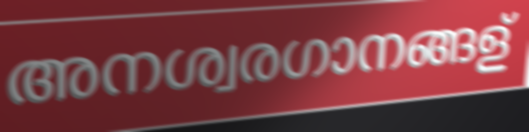
അനശ്വരഗാനങ്ങള്